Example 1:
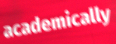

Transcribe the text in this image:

academically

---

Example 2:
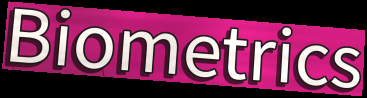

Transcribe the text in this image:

Biometrics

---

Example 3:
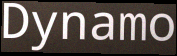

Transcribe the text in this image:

Dynamo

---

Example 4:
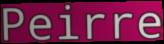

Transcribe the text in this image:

Peirre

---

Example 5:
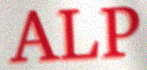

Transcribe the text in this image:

ALP